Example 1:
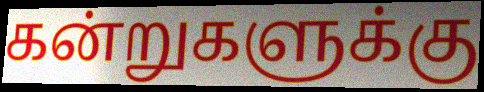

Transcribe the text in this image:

கன்றுகளுக்கு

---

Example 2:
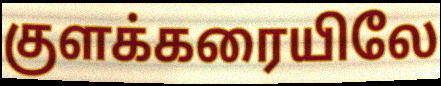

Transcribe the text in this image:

குளக்கரையிலே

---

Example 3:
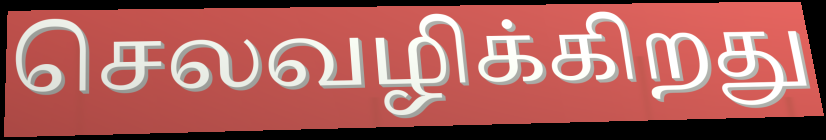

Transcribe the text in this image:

செலவழிக்கிறது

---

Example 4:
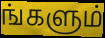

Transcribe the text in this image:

ங்களும்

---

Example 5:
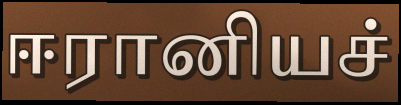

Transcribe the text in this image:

ஈரானியச்